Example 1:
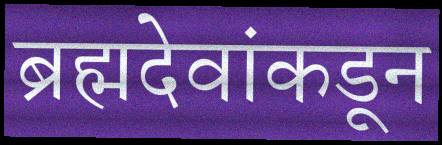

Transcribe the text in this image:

ब्रह्मदेवांकडून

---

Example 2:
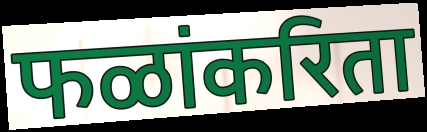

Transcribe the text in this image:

फळांकरिता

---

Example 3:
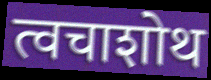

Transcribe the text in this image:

त्वचाशोथ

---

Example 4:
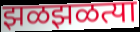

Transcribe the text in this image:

झळझळत्या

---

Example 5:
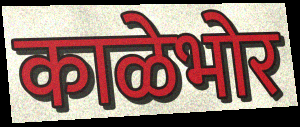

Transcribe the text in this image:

काळेभोर